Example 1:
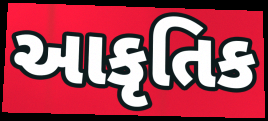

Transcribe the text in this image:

આકૃતિક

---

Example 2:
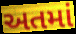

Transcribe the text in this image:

અતમાં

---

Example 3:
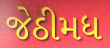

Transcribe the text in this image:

જેઠીમધ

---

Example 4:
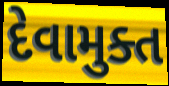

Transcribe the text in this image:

દેવામુક્ત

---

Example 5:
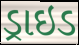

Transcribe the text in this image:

ડ્રાઇડ